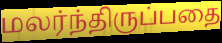
மலர்ந்திருப்பதை